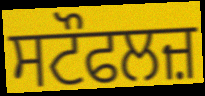
ਸਟੌਫਲਜ਼